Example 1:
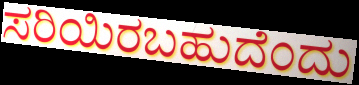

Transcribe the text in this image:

ಸರಿಯಿರಬಹುದೆಂದು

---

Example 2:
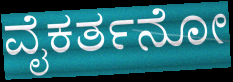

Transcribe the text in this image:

ವೈಕರ್ತನೋ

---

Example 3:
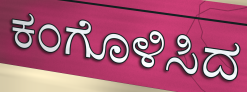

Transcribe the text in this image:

ಕಂಗೊಳಿಸಿದ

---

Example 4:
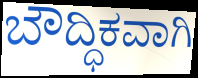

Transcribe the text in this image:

ಬೌದ್ಧಿಕವಾಗಿ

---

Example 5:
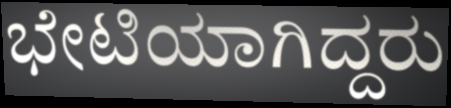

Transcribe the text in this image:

ಭೇಟಿಯಾಗಿದ್ದರು